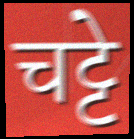
चट्टे